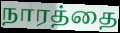
நாரத்தை